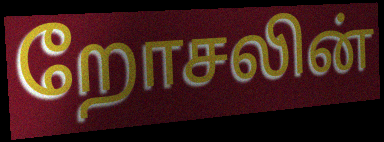
றோசலின்